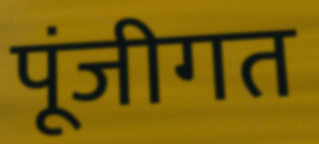
पूंजीगत